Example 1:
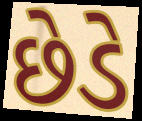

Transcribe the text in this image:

છેડે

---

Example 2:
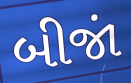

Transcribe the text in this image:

બીજાં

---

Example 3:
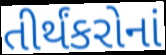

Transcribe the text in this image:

તીર્થંકરોનાં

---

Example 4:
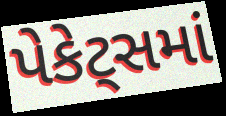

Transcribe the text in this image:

પેકેટ્સમાં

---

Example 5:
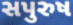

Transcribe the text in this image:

સપુરુષ